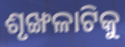
ଶୃଙ୍ଖଳାଟିକୁ